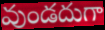
వుండదుగా